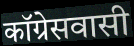
कॉग्रेसवासी